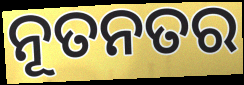
ନୂତନତର